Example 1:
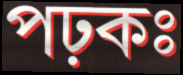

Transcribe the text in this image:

পঢ়কঃ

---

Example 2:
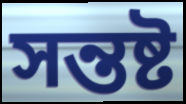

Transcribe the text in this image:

সন্তষ্ট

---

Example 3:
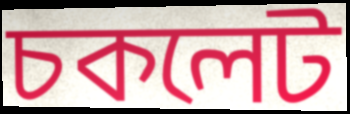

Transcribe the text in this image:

চকলেট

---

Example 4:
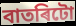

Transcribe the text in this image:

বাতৰিটো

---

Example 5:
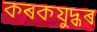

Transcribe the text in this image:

কৰকযুদ্ধৰ